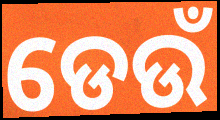
ଡେଉଁ